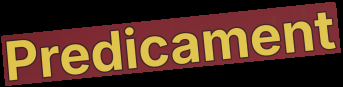
Predicament